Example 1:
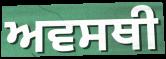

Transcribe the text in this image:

ਅਵਸਥੀ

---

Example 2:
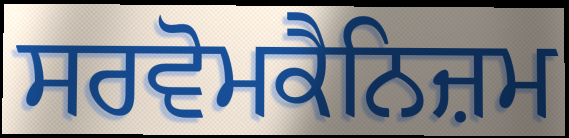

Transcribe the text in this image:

ਸਰਵੋਮਕੈਨਿਜ਼ਮ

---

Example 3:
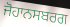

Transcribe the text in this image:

ਜੋਹਾਨਸਬਰਗ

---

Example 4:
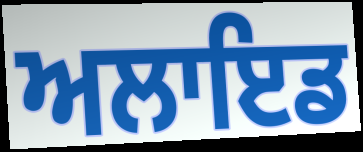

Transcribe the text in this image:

ਅਲਾਇਡ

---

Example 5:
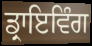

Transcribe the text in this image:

ਡ੍ਰਾਇਵਿੰਗ